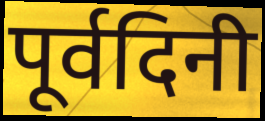
पूर्वदिनी